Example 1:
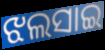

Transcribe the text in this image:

ଝଲସାଇ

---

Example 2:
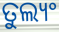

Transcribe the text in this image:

ତୁଲ୍ୟଂ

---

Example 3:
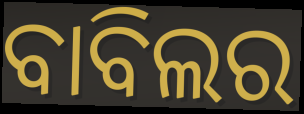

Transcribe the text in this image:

ବାବିଲର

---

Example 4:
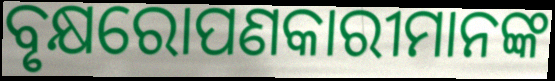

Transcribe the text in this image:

ବୃକ୍ଷରୋପଣକାରୀମାନଙ୍କ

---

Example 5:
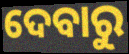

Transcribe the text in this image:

ଦେବାରୁ